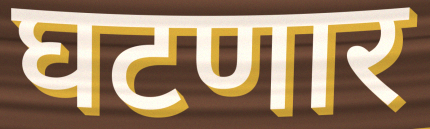
घटणार